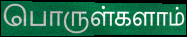
பொருள்களாம்